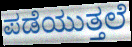
ಪಡೆಯುತ್ತಲೆ